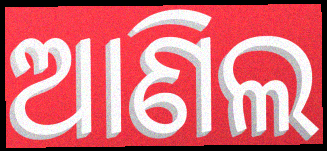
ଆଣିଲ